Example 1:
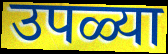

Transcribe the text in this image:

उपळ्या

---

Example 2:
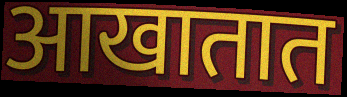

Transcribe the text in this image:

आखातात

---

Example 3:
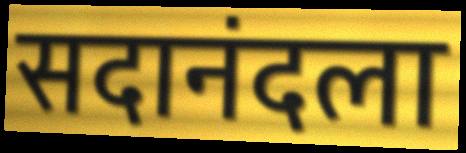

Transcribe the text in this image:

सदानंदला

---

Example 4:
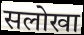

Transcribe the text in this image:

सलोखा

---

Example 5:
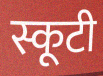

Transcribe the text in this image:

स्कूटी